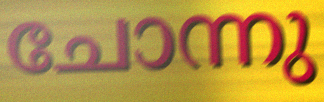
ചോന്നു